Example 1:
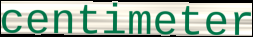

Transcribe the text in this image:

centimeter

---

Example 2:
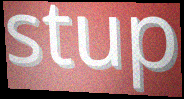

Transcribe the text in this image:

stup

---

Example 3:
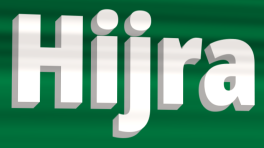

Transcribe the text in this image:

Hijra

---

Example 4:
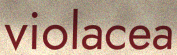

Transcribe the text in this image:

violacea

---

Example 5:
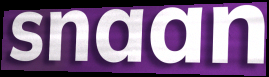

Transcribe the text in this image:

snaan